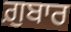
ਗ਼ੁਬਾਰ